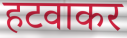
हटवाकर